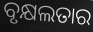
ବୃକ୍ଷଲତାର